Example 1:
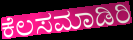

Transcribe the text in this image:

ಕೆಲಸಮಾಡಿರಿ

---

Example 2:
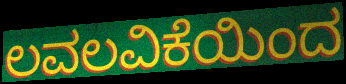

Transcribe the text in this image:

ಲವಲವಿಕೆಯಿಂದ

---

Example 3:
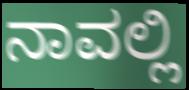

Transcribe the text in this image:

ನಾವಲ್ಲಿ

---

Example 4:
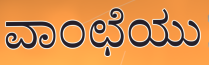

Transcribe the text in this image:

ವಾಂಛೆಯು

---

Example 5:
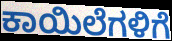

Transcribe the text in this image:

ಕಾಯಿಲೆಗಳಿಗೆ